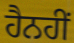
ਹੈਨਹੀਂ